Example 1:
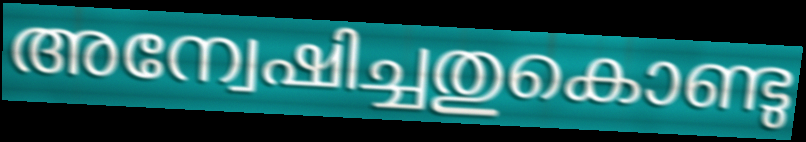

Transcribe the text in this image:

അന്വേഷിച്ചതുകൊണ്ടു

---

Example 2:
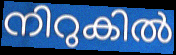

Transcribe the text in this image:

നിറുകിൽ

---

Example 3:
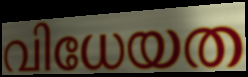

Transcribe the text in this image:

വിധേയത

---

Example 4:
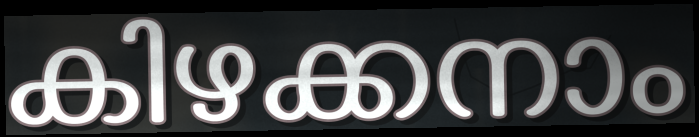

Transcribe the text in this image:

കിഴക്കനാം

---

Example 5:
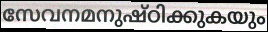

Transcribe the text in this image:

സേവനമനുഷ്ഠിക്കുകയും